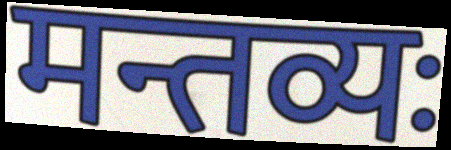
मन्तव्यः